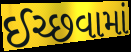
ઈચ્છવામાં